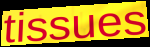
tissues